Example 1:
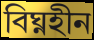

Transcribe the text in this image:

বিঘ্নহীন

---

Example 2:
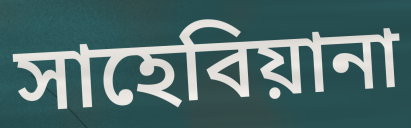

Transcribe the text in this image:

সাহেবিয়ানা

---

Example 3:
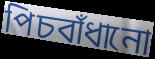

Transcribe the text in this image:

পিচবাঁধানো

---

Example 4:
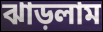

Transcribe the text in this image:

ঝাড়লাম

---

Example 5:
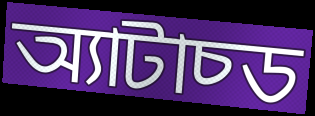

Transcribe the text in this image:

অ্যাটাচ্ড